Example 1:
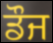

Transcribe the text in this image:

ਡੌਜ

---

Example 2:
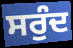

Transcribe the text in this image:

ਸਰੁੰਦ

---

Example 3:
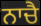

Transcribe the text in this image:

ਨਾਚੈ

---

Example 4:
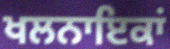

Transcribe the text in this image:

ਖਲਨਾਇਕਾਂ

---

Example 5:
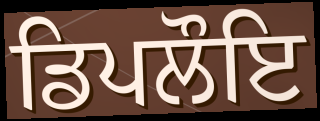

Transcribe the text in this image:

ਡਿਪਲੌਇ